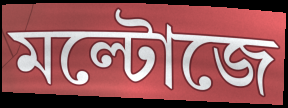
মল্টোজে